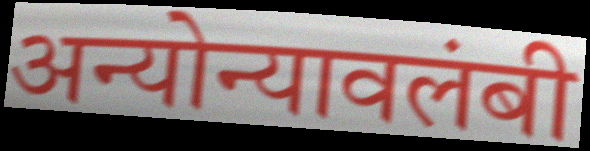
अन्योन्यावलंबी